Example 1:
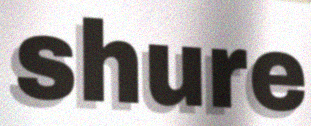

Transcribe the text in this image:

shure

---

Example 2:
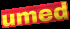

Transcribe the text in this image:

umed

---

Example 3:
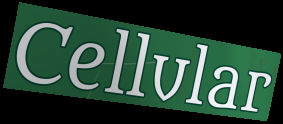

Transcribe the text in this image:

Cellular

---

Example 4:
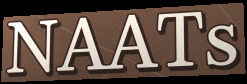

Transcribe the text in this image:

NAATs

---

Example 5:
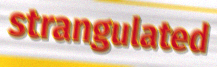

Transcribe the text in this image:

strangulated